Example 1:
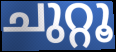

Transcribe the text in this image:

ചുറ്റൂ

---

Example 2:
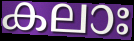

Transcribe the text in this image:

കലാഃ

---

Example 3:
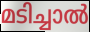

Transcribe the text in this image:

മടിച്ചാൽ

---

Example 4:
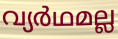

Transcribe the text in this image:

വ്യർഥമല്ല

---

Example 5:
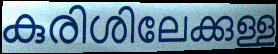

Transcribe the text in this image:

കുരിശിലേക്കുള്ള